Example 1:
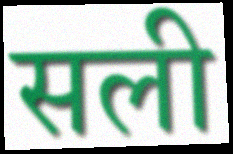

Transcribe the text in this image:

सली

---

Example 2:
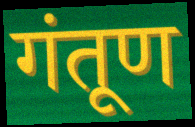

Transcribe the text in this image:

गंतूण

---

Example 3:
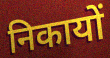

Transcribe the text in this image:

निकायों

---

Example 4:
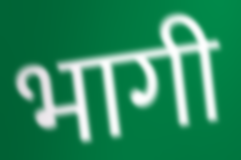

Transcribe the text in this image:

भागी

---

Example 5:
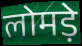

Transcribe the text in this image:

लोमड़े